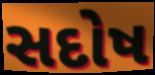
સદોષ